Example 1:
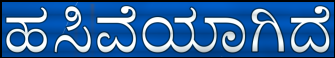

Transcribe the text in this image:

ಹಸಿವೆಯಾಗಿದೆ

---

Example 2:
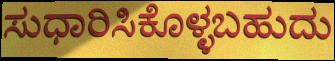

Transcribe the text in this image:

ಸುಧಾರಿಸಿಕೊಳ್ಳಬಹುದು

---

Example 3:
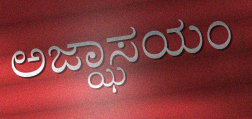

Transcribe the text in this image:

ಅಜ್ಝಾಸಯಂ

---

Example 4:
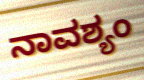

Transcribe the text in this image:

ನಾವಶ್ಯಂ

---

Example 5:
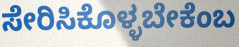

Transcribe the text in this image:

ಸೇರಿಸಿಕೊಳ್ಳಬೇಕೆಂಬ